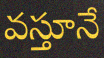
వస్తూనే